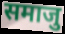
समाजु